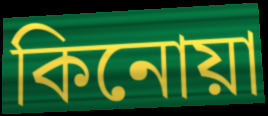
কিনোয়া